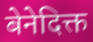
बेनेदिक्त